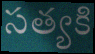
సత్యకి